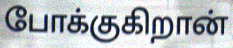
போக்குகிறான்